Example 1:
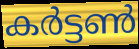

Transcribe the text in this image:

കർട്ടൺ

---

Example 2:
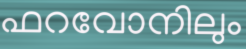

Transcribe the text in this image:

ഫറവോനിലും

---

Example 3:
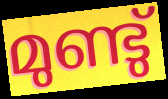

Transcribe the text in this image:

മുണ്ടു്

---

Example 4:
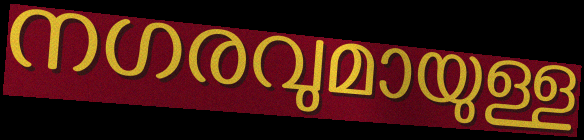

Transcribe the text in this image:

നഗരവുമായുള്ള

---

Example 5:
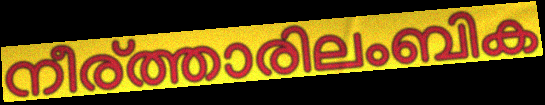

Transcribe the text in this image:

നീര്ത്താരിലംബിക